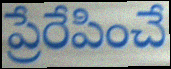
ప్రేరేపించే